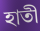
হাতী